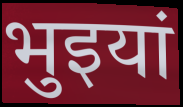
भुइयां